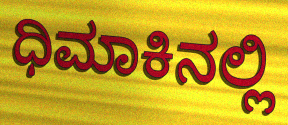
ಧಿಮಾಕಿನಲ್ಲಿ